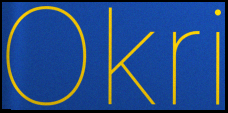
Okri